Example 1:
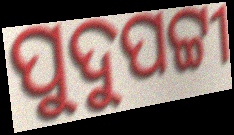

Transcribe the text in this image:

ପୁଦୁପଟ୍ଟୀ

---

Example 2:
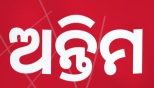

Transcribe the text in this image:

ଅନ୍ତିମ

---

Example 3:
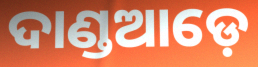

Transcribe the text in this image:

ଦାଣ୍ଡଆଡ଼େ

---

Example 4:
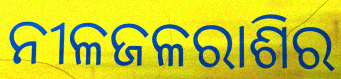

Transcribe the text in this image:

ନୀଳଜଳରାଶିର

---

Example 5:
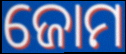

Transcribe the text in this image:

ଜୋମ